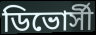
ডিভোর্সী